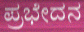
ಪ್ರಭೇದನ